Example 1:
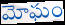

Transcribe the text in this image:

మోఘం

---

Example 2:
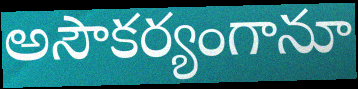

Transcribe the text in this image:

అసౌకర్యంగానూ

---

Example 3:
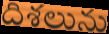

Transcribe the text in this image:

దిశలును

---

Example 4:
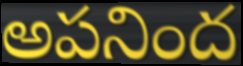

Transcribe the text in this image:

అపనింద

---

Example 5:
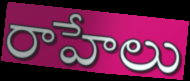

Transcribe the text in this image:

రాహేలు